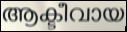
ആക്ടീവായ